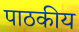
पाठकीय